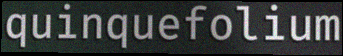
quinquefolium